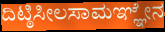
ದಿಟ್ಠಿಸೀಲಸಾಮಞ್ಞೇನ